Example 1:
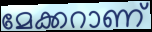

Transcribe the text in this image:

മേക്കറാണ്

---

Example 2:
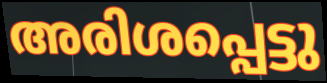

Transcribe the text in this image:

അരിശപ്പെട്ടു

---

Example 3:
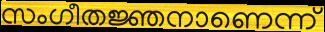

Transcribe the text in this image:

സംഗീതജ്ഞനാണെന്ന്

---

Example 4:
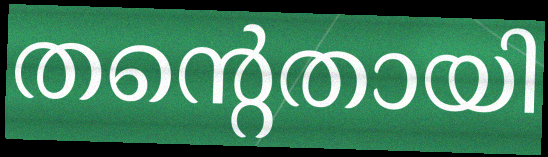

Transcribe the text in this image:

തന്റെതായി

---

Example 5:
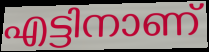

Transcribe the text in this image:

എട്ടിനാണ്